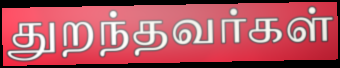
துறந்தவர்கள்